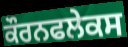
ਕੌਰਨਫਲੇਕਸ